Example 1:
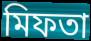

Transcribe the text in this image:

মিফতা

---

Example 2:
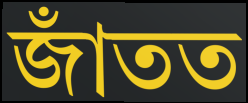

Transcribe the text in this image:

জাঁতত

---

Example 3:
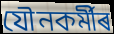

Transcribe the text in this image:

যৌনকৰ্মীৰ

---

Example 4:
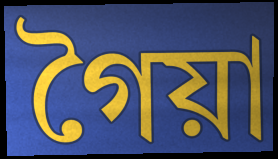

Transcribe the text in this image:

গৈয়া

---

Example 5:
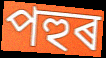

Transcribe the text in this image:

পহুৰ